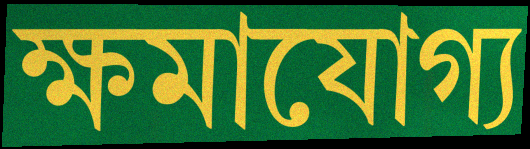
ক্ষমাযোগ্য